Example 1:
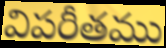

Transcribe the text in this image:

విపరీతము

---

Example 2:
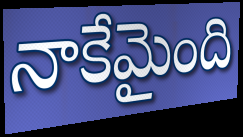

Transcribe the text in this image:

నాకేమైంది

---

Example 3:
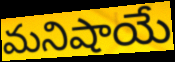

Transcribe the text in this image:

మనిషాయే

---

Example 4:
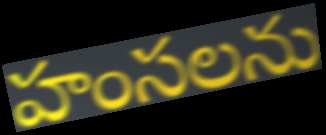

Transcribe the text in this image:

హంసలను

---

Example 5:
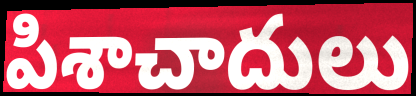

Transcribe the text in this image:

పిశాచాదులు